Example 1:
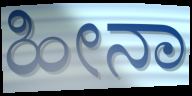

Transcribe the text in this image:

ಹೀನಾ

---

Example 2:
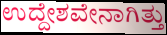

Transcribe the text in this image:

ಉದ್ದೇಶವೇನಾಗಿತ್ತು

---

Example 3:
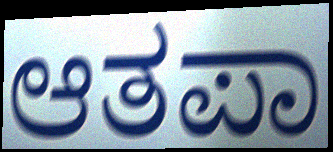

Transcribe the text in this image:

ಆತಪಾ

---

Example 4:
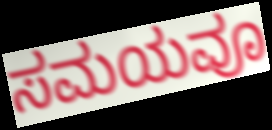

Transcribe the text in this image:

ಸಮಯವೂ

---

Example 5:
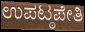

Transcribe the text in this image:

ಉಪಟ್ಠಪೇತಿ